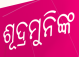
ଶୂଦ୍ରମୁନିଙ୍କ